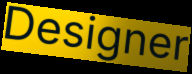
Designer